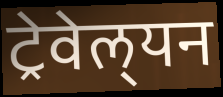
ट्रेवेल्यन